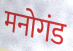
मनोगंड